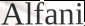
Alfani